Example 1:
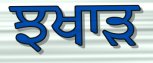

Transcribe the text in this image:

ਝਖਾੜ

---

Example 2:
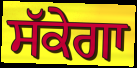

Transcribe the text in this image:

ਸੱਕੇਗਾ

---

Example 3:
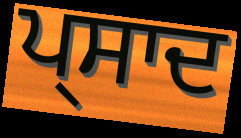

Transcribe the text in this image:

ਪ੍ਸਾਦ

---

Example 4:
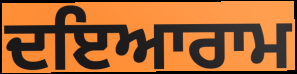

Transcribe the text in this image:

ਦਇਆਰਾਮ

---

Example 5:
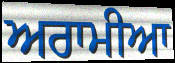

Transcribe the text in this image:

ਅਰਾਮੀਆ